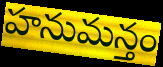
హనుమన్తం